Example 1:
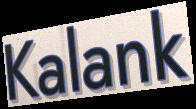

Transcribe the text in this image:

Kalank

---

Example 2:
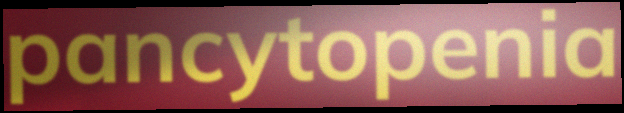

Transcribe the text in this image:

pancytopenia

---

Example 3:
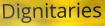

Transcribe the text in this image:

Dignitaries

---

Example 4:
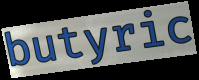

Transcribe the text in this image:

butyric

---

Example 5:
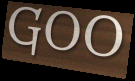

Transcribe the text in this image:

GOO